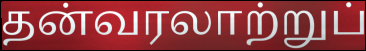
தன்வரலாற்றுப்